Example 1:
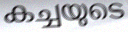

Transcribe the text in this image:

കച്ചയുടെ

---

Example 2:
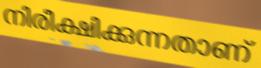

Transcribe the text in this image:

നിരീക്ഷിക്കുന്നതാണ്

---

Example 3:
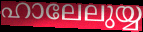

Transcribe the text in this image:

ഹാലേലുയ്യ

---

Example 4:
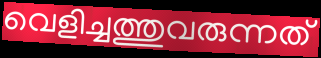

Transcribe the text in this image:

വെളിച്ചത്തുവരുന്നത്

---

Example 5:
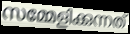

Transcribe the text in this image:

സമ്മേളിക്കുന്നത്